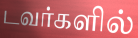
டவர்களில்